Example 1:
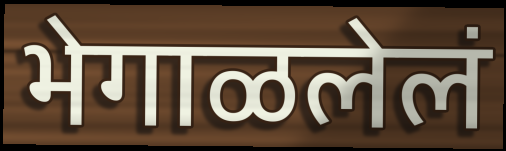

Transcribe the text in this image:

भेगाळलेलं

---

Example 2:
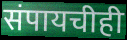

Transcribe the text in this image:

संपायचीही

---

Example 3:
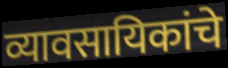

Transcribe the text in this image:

व्यावसायिकांचे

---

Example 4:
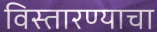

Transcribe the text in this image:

विस्तारण्याचा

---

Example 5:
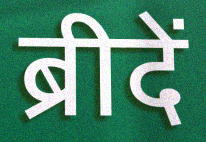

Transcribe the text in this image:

ब्रीदें